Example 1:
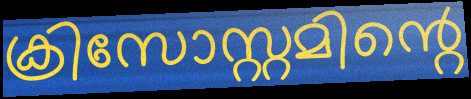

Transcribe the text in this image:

ക്രിസോസ്റ്റമിന്റെ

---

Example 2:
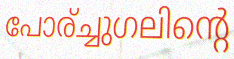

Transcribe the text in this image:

പോര്ച്ചുഗലിന്റെ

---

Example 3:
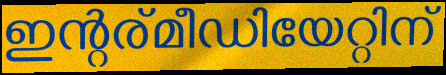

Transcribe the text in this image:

ഇന്റര്മീഡിയേറ്റിന്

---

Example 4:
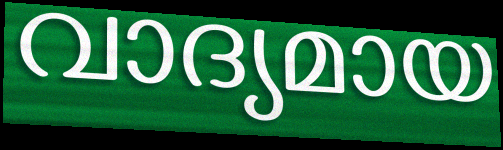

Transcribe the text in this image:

വാദ്യമായ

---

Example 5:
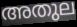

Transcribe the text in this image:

അതുല